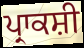
ਪ੍ਰਾਕਸ਼ੀ